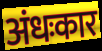
अंधःकार